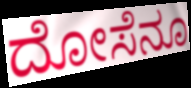
ದೋಸೆನೂ